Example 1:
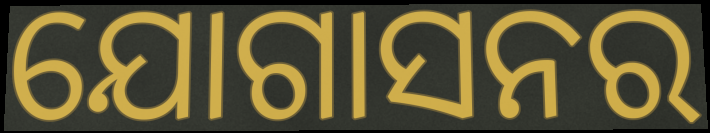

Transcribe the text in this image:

ଯୋଗାସନର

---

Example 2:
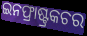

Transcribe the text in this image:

ଇନଫ୍ରାଷ୍ଟ୍ରକଚର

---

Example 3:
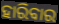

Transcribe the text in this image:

ହାରିବାର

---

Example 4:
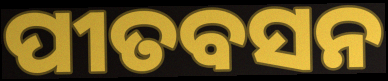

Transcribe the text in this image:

ପୀତବସନ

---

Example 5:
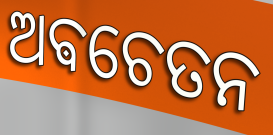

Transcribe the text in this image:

ଅଵଚେତନ